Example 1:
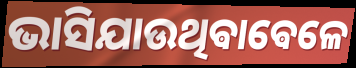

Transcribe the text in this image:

ଭାସିଯାଉଥିଵାଵେଳେ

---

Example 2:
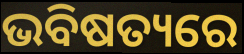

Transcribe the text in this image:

ଭବିଷତ୍ୟରେ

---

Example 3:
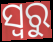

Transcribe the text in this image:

ସ୍ୱରୁ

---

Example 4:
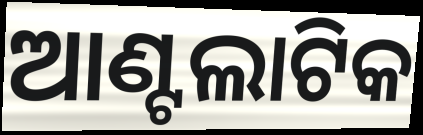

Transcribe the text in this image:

ଆଣ୍ଟଲାଟିକ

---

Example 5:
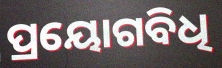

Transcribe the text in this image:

ପ୍ରୟୋଗବିଧି